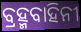
ବ୍ରହ୍ମବାହିନୀ